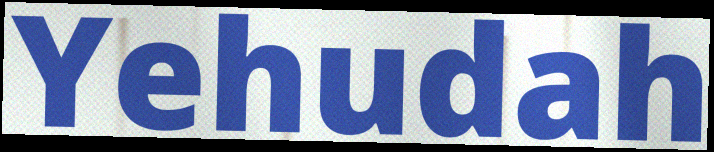
Yehudah